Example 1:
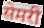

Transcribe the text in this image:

सेमरी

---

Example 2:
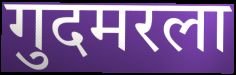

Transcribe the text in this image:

गुदमरला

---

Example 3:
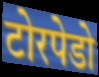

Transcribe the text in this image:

टोरपेडो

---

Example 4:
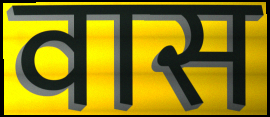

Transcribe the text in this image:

वास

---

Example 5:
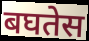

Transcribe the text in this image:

बघतेस